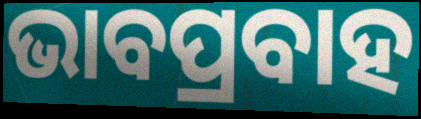
ଭାବପ୍ରବାହ